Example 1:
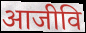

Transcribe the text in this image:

आजीवि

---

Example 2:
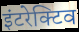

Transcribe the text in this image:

इंटरेक्टिव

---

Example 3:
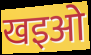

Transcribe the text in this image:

खइओ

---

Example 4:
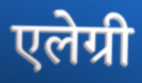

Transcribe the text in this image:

एलेग्री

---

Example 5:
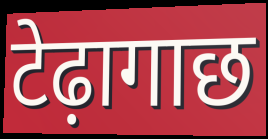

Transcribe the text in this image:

टेढ़ागाछ